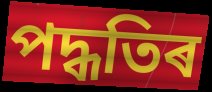
পদ্ধতিৰ